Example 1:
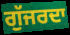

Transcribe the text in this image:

ਗੁੱਜਰਦਾ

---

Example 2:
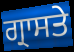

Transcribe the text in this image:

ਗ੍ਰਾਸਤੇ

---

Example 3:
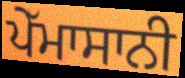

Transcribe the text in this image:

ਪੇੱਮਾਸਾਨੀ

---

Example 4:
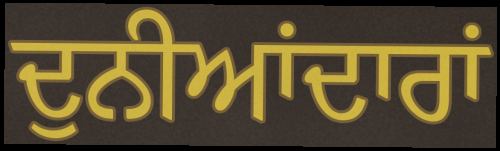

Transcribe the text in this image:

ਦੁਨੀਆਂਦਾਰਾਂ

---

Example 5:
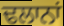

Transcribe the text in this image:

ਢਲਾਨਾਂ